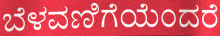
ಬೆಳವಣಿಗೆಯೆಂದರೆ